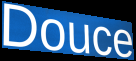
Douce